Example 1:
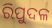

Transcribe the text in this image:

ରିପୁଦଳ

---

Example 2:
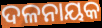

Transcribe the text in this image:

ଦଳନାୟକ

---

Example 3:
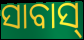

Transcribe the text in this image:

ସାବାସ୍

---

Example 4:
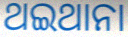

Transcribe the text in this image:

ଥଇଥାନା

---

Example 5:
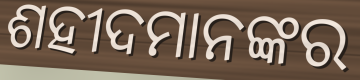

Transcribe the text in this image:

ଶହୀଦମାନଙ୍କର